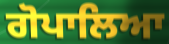
ਗੋਪਾਲਿਆ